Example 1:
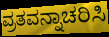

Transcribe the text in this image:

ವ್ರತವನ್ನಾಚರಿಸಿ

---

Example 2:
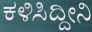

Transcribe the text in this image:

ಕಳಿಸಿದ್ದೀನಿ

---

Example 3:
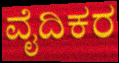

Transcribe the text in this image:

ವೈದಿಕರ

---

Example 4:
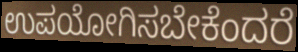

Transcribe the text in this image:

ಉಪಯೋಗಿಸಬೇಕೆಂದರೆ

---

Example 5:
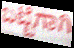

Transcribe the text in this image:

ಬಟ್ಟೆಗಾಗಿ